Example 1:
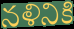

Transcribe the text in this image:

నళినికి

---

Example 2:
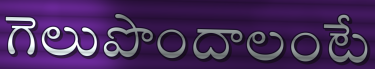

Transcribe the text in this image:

గెలుపొందాలంటే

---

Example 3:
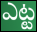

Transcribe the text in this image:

ఎట్ట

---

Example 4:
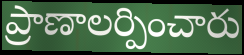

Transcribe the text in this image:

ప్రాణాలర్పించారు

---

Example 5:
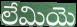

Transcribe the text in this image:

లేమియె